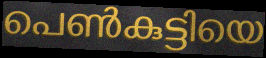
പെൺകുട്ടിയെ